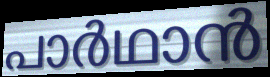
പാർഥാൻ